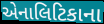
એનાલિટિકાના